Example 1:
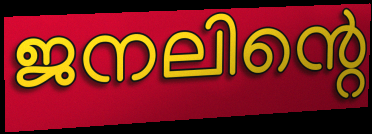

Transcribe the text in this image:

ജനലിന്റെ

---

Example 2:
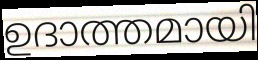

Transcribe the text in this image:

ഉദാത്തമായി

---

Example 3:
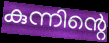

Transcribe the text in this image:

കുന്നിന്റെ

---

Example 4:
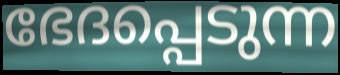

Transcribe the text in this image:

ഭേദപ്പെടുന്ന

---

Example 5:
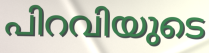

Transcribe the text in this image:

പിറവിയുടെ